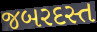
જબરદસ્ત